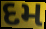
દમ